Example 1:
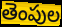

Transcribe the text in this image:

తెంపుల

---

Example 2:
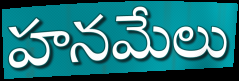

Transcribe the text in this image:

హనమేలు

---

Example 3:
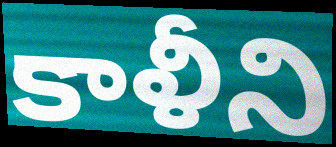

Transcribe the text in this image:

కాళీని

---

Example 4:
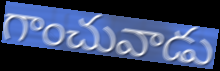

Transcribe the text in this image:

గాంచువాడు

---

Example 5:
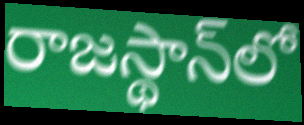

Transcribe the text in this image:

రాజస్థాన్‌లో